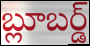
బ్లూబర్డ్